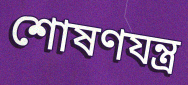
শোষণযন্ত্র